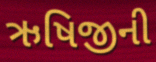
ઋષિજીની